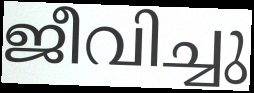
ജീവിച്ചു